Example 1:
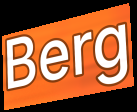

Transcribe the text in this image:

Berg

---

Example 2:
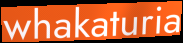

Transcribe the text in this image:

whakaturia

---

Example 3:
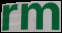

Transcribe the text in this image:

rm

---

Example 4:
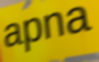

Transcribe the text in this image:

apna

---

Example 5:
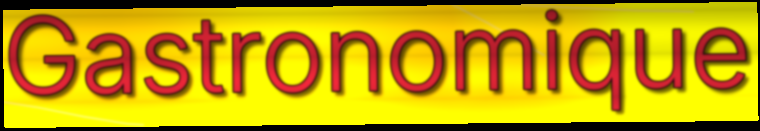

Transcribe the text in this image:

Gastronomique